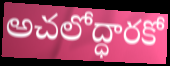
అచలోద్ధారకో